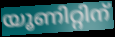
യൂണിറ്റിന്